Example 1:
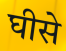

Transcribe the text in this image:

घीसे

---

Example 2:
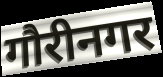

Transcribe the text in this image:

गौरीनगर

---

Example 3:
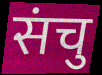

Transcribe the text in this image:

संचु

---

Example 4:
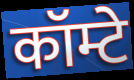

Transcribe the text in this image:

कॉम्टे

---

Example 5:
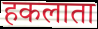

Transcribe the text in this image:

हकलाता